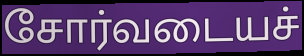
சோர்வடையச்